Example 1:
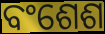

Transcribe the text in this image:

ବଂଶେଶ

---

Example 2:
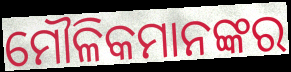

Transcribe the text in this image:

ମୌଳିକମାନଙ୍କର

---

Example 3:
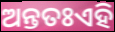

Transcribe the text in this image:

ଅନ୍ତତଃଏହି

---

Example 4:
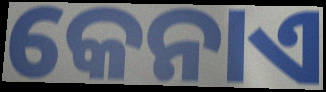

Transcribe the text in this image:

କେନାଏ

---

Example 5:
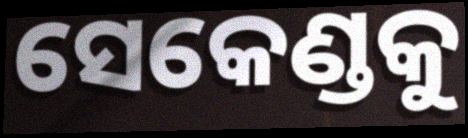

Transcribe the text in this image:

ସେକେଣ୍ଡକୁ